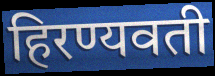
हिरण्यवती